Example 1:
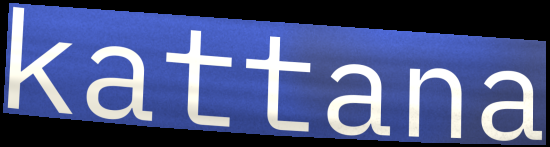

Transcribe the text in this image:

kattana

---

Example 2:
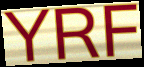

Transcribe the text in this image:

YRF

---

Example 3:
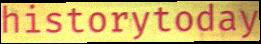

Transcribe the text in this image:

historytoday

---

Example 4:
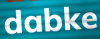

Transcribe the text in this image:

dabke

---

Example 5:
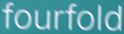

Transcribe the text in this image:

fourfold